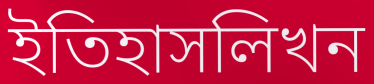
ইতিহাসলিখন